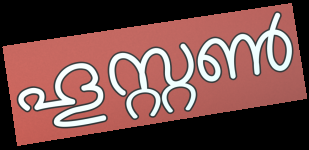
ഹൂസ്റ്റൺ